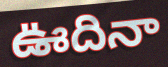
ఊదినా